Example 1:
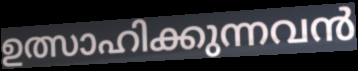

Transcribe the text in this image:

ഉത്സാഹിക്കുന്നവൻ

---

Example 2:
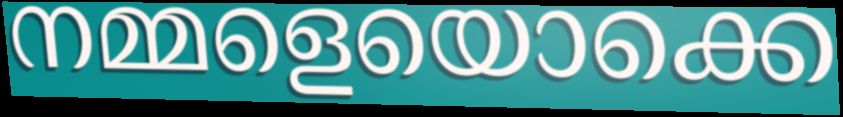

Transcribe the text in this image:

നമ്മളെയൊക്കെ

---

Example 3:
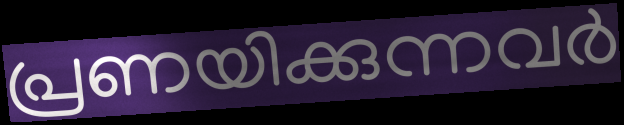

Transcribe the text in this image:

പ്രണയിക്കുന്നവർ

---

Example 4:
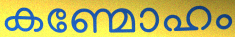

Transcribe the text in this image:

കണ്മോഹം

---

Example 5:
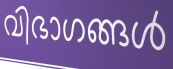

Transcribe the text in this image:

വിഭാഗങ്ങൾ